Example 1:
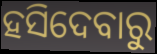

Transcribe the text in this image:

ହସିଦେବାରୁ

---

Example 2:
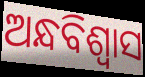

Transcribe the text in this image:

ଅନ୍ଧବିଶ୍ବାସ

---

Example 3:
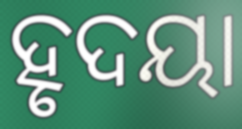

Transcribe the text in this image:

ହୃଦୟା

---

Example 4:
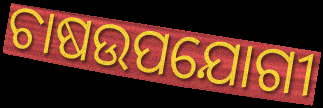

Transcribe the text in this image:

ଚାଷଉପଯୋଗୀ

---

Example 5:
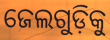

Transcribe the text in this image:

ଜେଲଗୁଡ଼ିକୁ